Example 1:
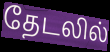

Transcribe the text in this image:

தேடலில்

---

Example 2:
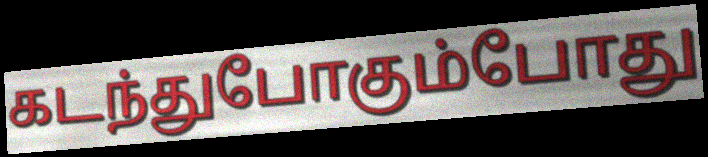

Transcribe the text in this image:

கடந்துபோகும்போது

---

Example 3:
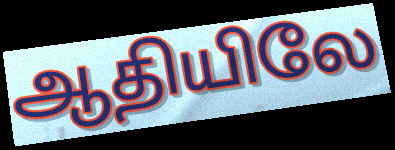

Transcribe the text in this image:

ஆதியிலே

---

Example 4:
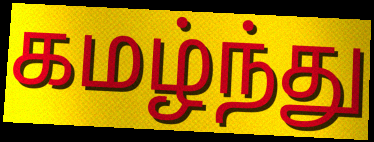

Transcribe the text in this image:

கமழ்ந்து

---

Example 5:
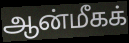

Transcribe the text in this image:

ஆன்மீகக்